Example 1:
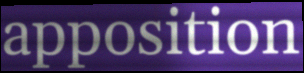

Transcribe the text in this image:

apposition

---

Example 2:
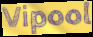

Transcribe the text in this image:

Vipool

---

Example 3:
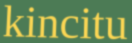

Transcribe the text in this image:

kincitu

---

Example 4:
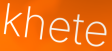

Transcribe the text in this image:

khete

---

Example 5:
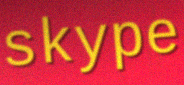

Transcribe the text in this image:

skype